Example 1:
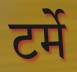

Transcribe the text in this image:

टर्मे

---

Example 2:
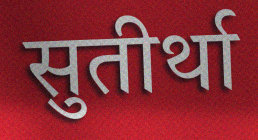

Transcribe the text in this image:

सुतीर्था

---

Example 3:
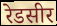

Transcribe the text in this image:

रेडसीर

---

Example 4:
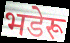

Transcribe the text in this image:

भडेरू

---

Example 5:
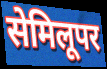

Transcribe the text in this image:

सेमिलूपर